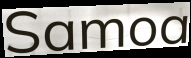
Samoa